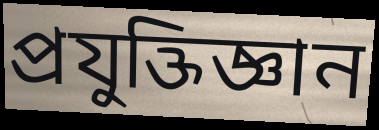
প্রযুক্তিজ্ঞান